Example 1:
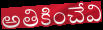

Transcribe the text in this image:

అతికించేవి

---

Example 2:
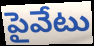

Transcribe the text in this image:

పైవేటు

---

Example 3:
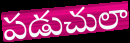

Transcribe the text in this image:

పడుచులా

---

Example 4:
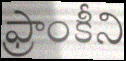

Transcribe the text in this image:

ఫ్రాంకీని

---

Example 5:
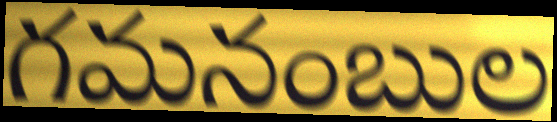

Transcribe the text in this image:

గమనంబుల